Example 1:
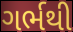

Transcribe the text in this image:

ગર્ભથી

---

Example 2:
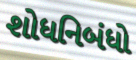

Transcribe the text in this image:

શોધનિબંધો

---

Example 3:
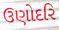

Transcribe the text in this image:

ઉણોદરિ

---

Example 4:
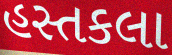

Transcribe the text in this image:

હસ્તકલા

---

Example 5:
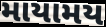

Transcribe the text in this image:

માયામય